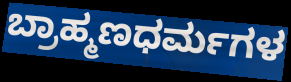
ಬ್ರಾಹ್ಮಣಧರ್ಮಗಳ